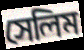
সেলিম